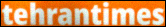
tehrantimes